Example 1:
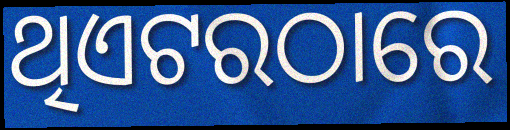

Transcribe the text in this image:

ଥିଏଟରଠାରେ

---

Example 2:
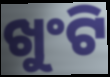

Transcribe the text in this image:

ଖୁଂଟି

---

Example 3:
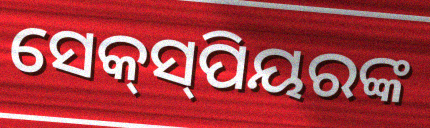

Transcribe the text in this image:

ସେକ୍‌ସ୍‌ପିୟରଙ୍କ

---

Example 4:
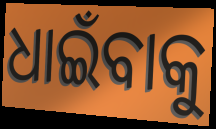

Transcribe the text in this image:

ଧାଇଁବାକୁ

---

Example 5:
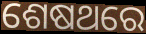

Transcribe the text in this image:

ଶେଷଥରେ